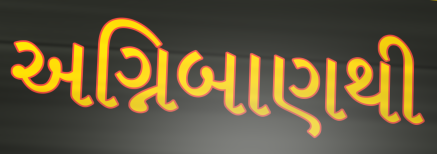
અગ્નિબાણથી